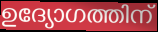
ഉദ്യോഗത്തിന്